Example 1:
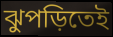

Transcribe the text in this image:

ঝুপড়িতেই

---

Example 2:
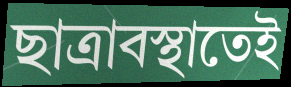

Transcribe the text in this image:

ছাত্রাবস্থাতেই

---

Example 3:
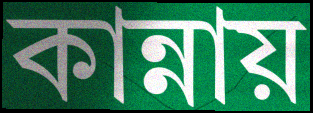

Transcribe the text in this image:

কান্নায়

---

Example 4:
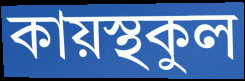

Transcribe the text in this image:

কায়স্থকুল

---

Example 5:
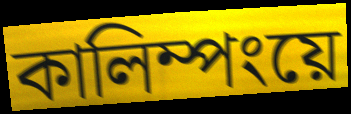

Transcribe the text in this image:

কালিম্পংয়ে